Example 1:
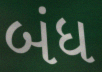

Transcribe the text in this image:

બંધ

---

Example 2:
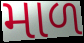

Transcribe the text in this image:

માળ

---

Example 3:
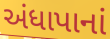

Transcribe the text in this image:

અંધાપાનાં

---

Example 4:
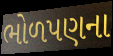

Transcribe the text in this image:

ભોળપણના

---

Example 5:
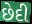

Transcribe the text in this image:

છેદી